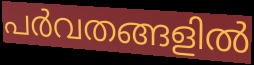
പർവതങ്ങളിൽ